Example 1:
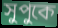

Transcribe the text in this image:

সুপুকে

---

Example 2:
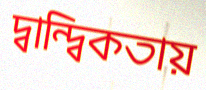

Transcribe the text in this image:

দ্বান্দ্বিকতায়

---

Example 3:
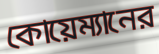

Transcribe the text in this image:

কোয়েম্যানের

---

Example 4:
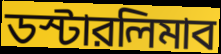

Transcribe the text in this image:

ডস্টারলিমাব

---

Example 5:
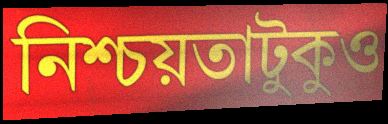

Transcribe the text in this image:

নিশ্চয়তাটুকুও